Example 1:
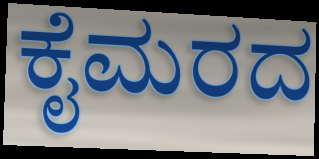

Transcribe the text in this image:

ಕೈಮರದ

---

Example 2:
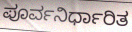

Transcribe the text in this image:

ಪೂರ್ವನಿರ್ಧಾರಿತ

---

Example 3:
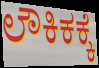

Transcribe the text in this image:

ಲೌಕಿಕಕ್ಕೆ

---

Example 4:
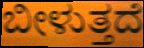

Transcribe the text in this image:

ಬೀಳುತ್ತದೆ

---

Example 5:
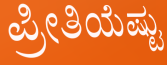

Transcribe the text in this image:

ಪ್ರೀತಿಯೆಷ್ಟು